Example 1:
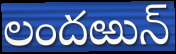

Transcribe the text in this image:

లందఱున్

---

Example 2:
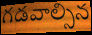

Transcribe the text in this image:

గడవాల్సిన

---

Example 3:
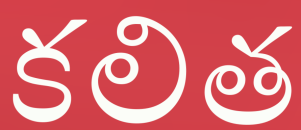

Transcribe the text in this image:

కలిత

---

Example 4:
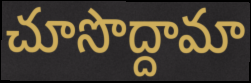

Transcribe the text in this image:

చూసొద్దామా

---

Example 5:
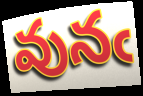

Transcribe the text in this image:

వునఁ